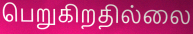
பெறுகிறதில்லை